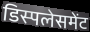
डिस्पलेसमेंट